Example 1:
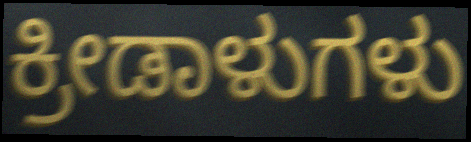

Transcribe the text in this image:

ಕ್ರೀಡಾಳುಗಳು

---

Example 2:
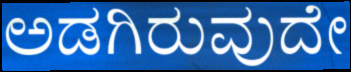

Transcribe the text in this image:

ಅಡಗಿರುವುದೇ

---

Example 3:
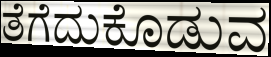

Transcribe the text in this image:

ತೆಗೆದುಕೊಡುವ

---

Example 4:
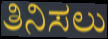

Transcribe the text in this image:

ತಿನಿಸಲು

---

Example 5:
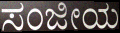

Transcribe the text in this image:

ಸಂಜೀಯ